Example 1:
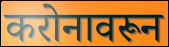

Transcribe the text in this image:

करोनावरून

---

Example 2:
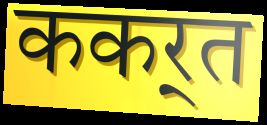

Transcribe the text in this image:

ककर्त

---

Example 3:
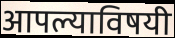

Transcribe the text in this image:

आपल्याविषयी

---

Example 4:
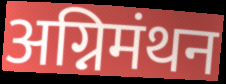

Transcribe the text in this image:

अग्निमंथन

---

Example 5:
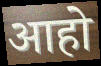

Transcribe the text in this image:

आहो